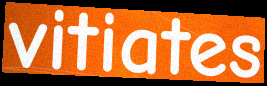
vitiates